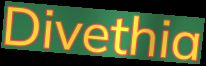
Divethia